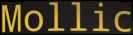
Mollic